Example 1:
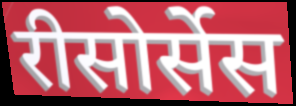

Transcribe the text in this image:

रीसोर्सेस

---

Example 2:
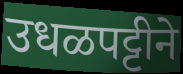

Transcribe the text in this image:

उधळपट्टीने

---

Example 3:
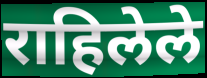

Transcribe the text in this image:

राहिलेले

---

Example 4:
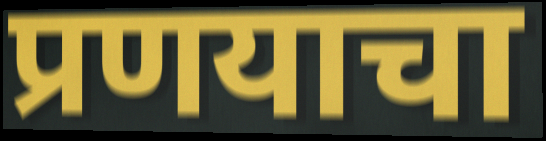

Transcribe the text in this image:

प्रणयाचा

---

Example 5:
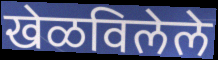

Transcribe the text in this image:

खेळविलेले